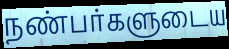
நண்பர்களுடைய